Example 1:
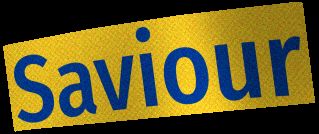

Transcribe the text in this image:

Saviour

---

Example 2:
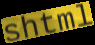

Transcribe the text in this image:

shtml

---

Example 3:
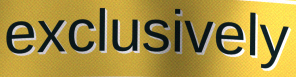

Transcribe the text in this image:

exclusively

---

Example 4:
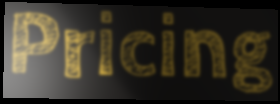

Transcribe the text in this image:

Pricing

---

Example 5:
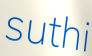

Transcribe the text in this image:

suthi